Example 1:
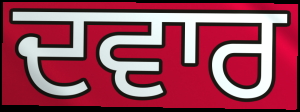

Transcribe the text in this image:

ਦਵਾਰ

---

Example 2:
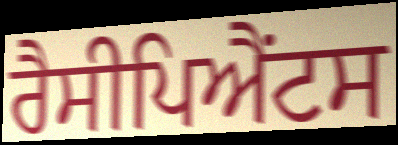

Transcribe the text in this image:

ਰੈਸੀਪਿਐਂਟਸ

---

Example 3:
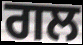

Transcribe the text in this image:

ਗਲ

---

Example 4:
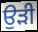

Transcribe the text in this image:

ਉਡ਼ੀ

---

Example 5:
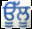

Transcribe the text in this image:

ਊੱਲੂ